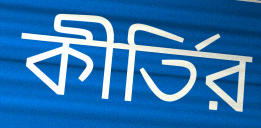
কীর্তির